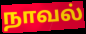
நாவல்